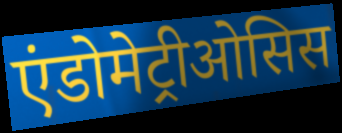
एंडोमेट्रीओसिस